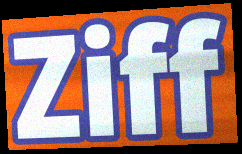
Ziff